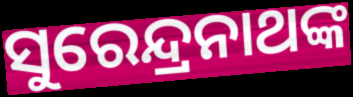
ସୁରେନ୍ଦ୍ରନାଥଙ୍କ